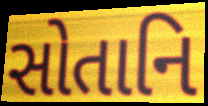
સોતાનિ